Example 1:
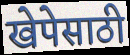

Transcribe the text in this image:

खेपेसाठी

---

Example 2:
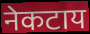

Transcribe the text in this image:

नेकटाय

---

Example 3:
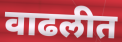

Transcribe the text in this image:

वाढलीत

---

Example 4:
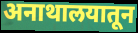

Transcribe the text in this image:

अनाथालयातून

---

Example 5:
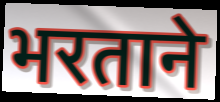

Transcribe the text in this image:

भरताने